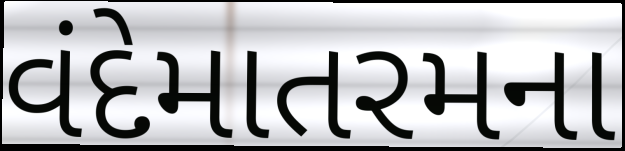
વંદેમાતરમના